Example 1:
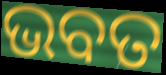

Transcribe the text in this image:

ଭବତ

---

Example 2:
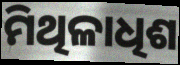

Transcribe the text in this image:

ମିଥିଳାଧିଶ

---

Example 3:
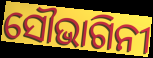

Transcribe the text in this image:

ସୌଭାଗିନୀ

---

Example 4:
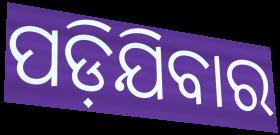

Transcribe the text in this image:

ପଡ଼ିଯିବାର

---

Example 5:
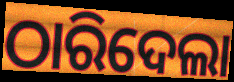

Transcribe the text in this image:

ଠାରିଦେଲା